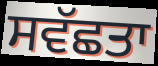
ਸਵੱਛਤਾ